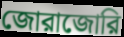
জোরাজোরি